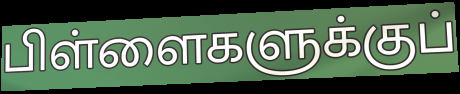
பிள்ளைகளுக்குப்